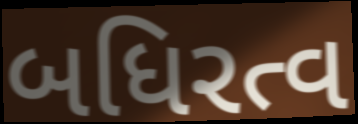
બધિરત્વ